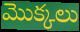
మొక్కలు